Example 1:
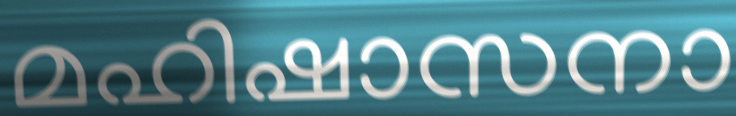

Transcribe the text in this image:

മഹിഷാസനാ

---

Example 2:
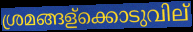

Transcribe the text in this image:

ശ്രമങ്ങള്ക്കൊടുവില്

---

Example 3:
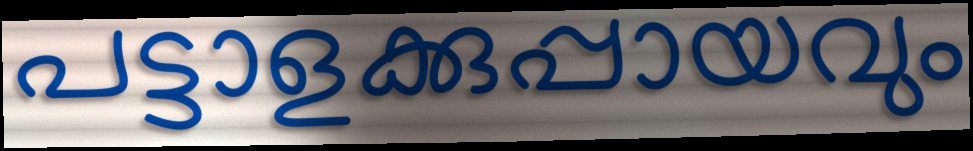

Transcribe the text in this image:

പട്ടാളക്കുപ്പായവും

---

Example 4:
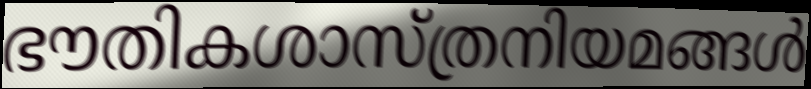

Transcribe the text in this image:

ഭൗതികശാസ്ത്രനിയമങ്ങൾ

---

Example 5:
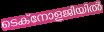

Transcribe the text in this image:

ടെക്‌നോളജിയിൽ